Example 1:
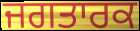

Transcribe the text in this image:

ਜਗਤਾਰਕ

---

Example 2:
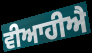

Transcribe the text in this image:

ਵੀਆਹੀਐ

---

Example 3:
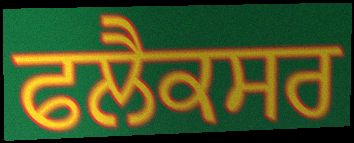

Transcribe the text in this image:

ਫਲੈਕਸਰ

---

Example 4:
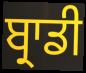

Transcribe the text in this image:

ਬ੍ਰਾਡੀ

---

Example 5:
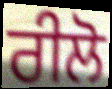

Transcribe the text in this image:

ਰੀਲੋ